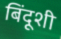
बिंदूशी